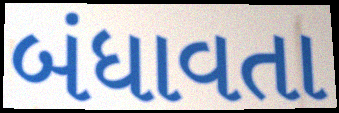
બંધાવતા